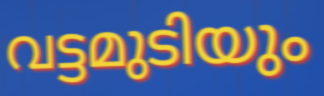
വട്ടമുടിയും